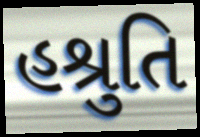
હશ્રુતિ